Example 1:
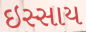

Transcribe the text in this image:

ઇસ્સાય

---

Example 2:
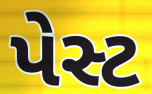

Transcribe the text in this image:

પેસ્ટ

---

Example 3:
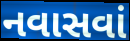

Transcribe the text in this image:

નવાસવાં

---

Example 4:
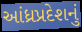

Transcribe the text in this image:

આંધ્રપ્રદેશનું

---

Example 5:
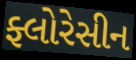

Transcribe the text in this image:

ફ્લોરેસીન